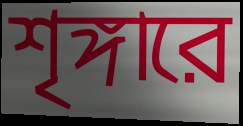
শৃঙ্গারে